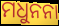
ମଧୁନନା